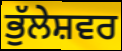
ਭੁੱਲੇਸ਼ਵਰ